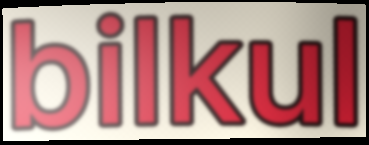
bilkul